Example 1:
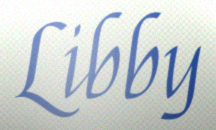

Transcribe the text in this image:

Libby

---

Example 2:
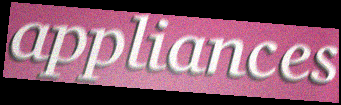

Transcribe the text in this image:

appliances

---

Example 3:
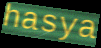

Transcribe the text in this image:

hasya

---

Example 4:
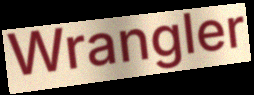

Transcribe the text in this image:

Wrangler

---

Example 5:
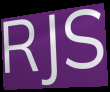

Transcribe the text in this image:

RJS